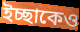
ইচ্ছাকেও